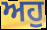
ਅਹੁ